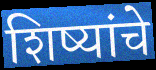
शिष्यांचे